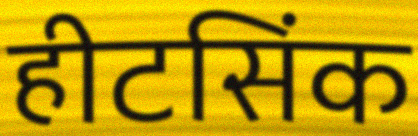
हीटसिंक